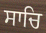
ਸਾਚਿ